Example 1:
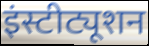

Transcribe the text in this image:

इंस्‍टीट्यूशन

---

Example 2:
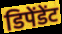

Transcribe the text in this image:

डिपेंडेंट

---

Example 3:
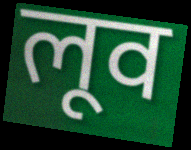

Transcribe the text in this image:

लूव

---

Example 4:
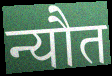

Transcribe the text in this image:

न्यौत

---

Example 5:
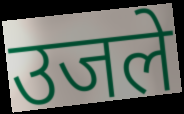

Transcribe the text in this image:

उजले